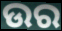
ଉର